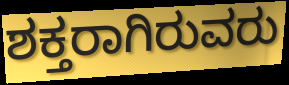
ಶಕ್ತರಾಗಿರುವರು